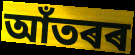
আঁতৰৰ